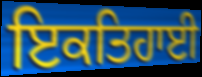
ਇਕਤਿਹਾਈ